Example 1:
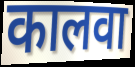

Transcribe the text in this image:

कालवा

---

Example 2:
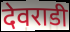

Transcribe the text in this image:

देवराडी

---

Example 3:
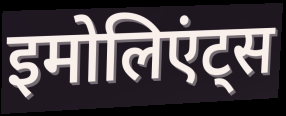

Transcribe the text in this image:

इमोलिएंट्स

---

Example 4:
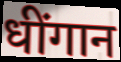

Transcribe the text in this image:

धींगान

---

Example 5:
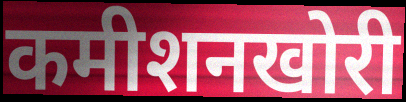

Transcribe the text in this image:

कमीशनखोरी